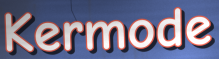
Kermode